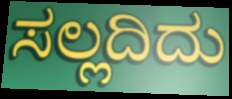
ಸಲ್ಲದಿದು